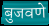
बुजवणे